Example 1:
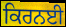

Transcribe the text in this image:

ਕਿਰਨਈ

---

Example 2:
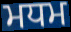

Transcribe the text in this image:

ਮਧਮ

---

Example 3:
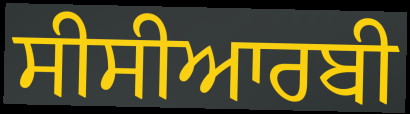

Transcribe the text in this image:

ਸੀਸੀਆਰਬੀ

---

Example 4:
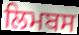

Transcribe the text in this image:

ਲਿਮਬਸ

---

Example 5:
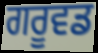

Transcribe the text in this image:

ਗਰੂਵਡ